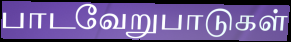
பாடவேறுபாடுகள்